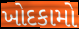
ખોદકામો